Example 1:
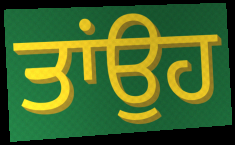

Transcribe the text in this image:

ਤਾਂਉਹ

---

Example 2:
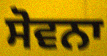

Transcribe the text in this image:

ਸੋਵਨਾ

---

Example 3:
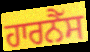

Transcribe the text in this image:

ਹਾਰਨੈੱਸ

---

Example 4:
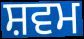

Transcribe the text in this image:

ਸ਼ਵਮ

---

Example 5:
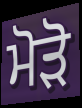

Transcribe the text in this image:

ਮੋੜੋ